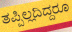
ತಪ್ಪಿಲ್ಲದಿದ್ದರೂ